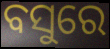
ବସୁରେ